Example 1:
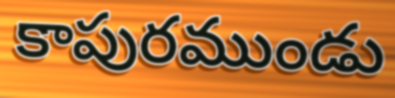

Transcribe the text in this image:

కాపురముండు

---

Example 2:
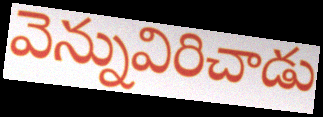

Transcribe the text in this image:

వెన్నువిరిచాడు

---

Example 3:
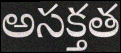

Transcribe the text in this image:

అసక్తత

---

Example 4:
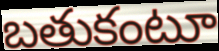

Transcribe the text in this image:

బతుకంటూ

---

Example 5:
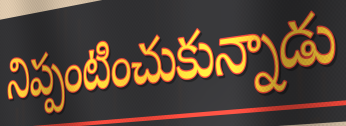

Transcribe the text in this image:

నిప్పంటించుకున్నాడు